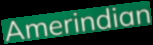
Amerindian